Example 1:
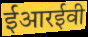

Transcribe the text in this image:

ईआरईवी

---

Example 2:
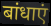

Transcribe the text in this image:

बांधाएं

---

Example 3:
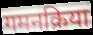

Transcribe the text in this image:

गमनक्रिया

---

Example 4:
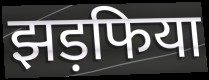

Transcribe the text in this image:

झड़फिया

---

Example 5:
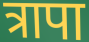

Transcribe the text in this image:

त्रापा